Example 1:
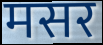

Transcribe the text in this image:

मसर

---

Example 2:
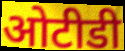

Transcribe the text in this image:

ओटीडी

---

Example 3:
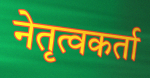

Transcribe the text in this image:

नेतृत्‍वकर्ता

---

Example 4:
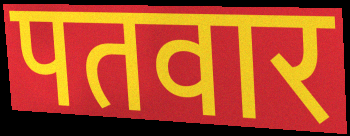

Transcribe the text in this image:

पतवार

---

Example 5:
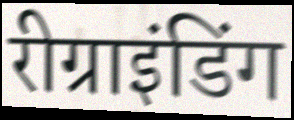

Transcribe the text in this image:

रीग्राइंडिंग